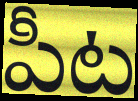
పీట